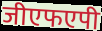
जीएफएपी